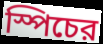
স্পিচের